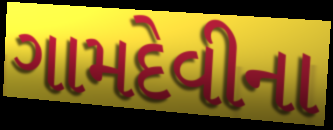
ગામદેવીના